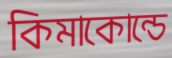
কিমাকোন্ডে